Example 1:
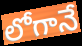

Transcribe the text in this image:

లోగానే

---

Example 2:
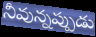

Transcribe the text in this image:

నీవున్నప్పుడు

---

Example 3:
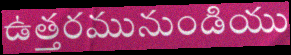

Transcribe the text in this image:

ఉత్తరమునుండియు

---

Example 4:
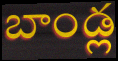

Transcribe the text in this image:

బాండ్ల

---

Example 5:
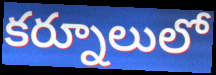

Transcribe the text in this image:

కర్నూలులో